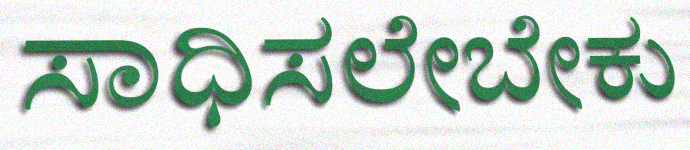
ಸಾಧಿಸಲೇಬೇಕು